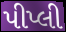
પીપ્લી